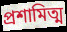
প্রশামিত্ম